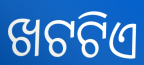
ଖଟଟିଏ